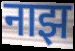
नाझ